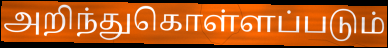
அறிந்துகொள்ளப்படும்